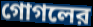
গোগলের